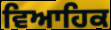
ਵਿਆਹਿਕ